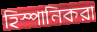
হিস্পানিকরা